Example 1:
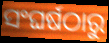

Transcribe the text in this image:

ସଂଘର୍ଷଠାରୁ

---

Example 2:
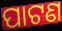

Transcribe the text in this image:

ପାଟଣ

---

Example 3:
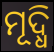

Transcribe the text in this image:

ମୂଦ୍ଧି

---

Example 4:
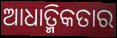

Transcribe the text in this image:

ଆଧାତ୍ମିକତାର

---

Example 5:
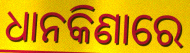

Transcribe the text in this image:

ଧାନକିଣାରେ